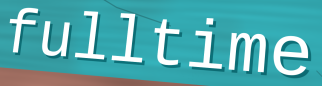
fulltime